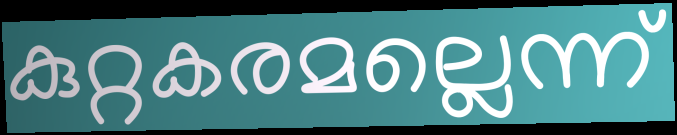
കുറ്റകരമല്ലെന്ന്